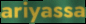
ariyassa